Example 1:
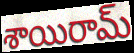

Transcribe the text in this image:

శాయిరామ్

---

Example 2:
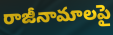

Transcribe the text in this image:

రాజీనామాలపై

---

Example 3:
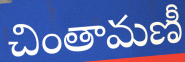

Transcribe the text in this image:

చింతామణీ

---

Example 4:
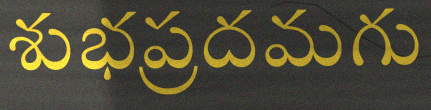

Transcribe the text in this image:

శుభప్రదమగు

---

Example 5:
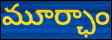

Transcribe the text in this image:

మూర్ఛాం